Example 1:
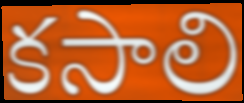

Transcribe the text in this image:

కసాలి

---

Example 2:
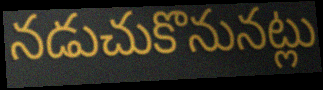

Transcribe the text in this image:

నడుచుకొనునట్లు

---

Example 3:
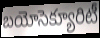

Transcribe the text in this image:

బయోసెక్యూరిటీ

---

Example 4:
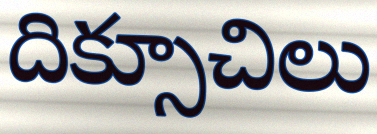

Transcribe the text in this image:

దిక్సూచిలు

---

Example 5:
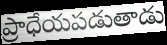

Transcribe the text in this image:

ప్రాధేయపడుతాడు